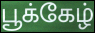
பூக்கேழ்